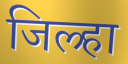
जिल्हा